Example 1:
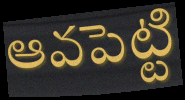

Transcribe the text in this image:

ఆవపెట్టి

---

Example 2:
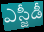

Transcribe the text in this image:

ఎస్జీడీ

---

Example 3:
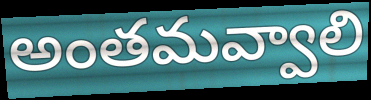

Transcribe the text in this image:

అంతమవ్వాలి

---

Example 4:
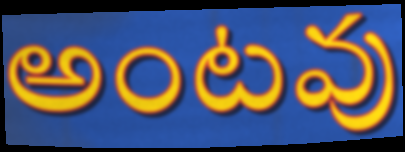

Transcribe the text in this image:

అంటవు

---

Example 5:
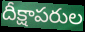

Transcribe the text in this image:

దీక్షాపరుల